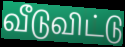
வீடுவிட்டு